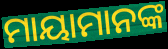
ମାୟାମାନଙ୍କ